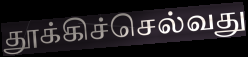
தூக்கிச்செல்வது